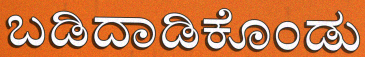
ಬಡಿದಾಡಿಕೊಂಡು